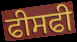
ਫੀਸਫੀ